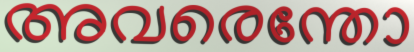
അവരെന്തോ